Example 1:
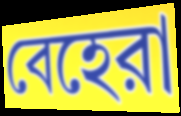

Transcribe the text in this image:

বেহেরা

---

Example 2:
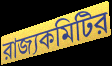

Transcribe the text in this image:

রাজ্যকমিটির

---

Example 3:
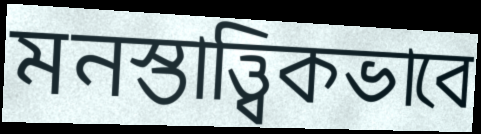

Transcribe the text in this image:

মনস্তাত্ত্বিকভাবে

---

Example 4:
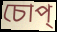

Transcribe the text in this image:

চোপ্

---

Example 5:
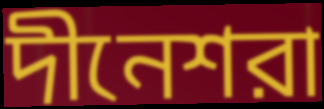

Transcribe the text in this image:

দীনেশরা